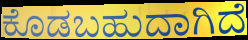
ಕೊಡಬಹುದಾಗಿದೆ